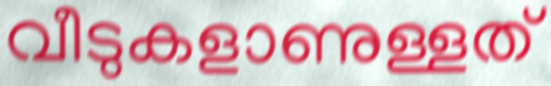
വീടുകളാണുള്ളത്